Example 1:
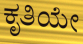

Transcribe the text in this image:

ಕೃತಿಯೇ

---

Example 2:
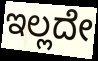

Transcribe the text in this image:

ಇಲ್ಲದೇ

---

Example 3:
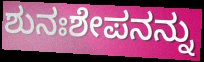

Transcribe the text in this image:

ಶುನಃಶೇಪನನ್ನು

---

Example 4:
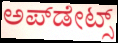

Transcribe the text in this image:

ಅಪ್‌ಡೇಟ್ಸ್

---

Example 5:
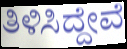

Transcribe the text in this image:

ತಿಳಿಸಿದ್ದೇವೆ